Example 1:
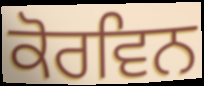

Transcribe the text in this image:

ਕੋਰਵਿਨ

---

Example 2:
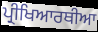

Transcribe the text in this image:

ਪ੍ਰੀਖਿਆਰਥੀਆ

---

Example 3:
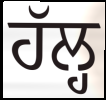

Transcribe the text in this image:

ਹੱਲ੍ਹ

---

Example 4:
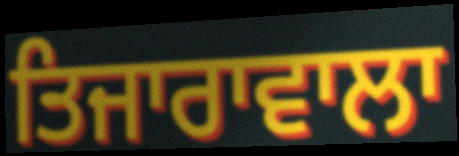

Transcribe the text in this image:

ਤਿਜਾਰਾਵਾਲਾ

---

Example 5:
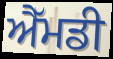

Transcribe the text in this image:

ਐੱਮਡੀ